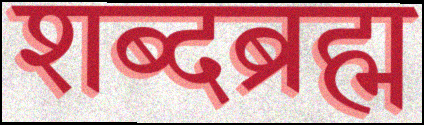
शब्दब्रह्म